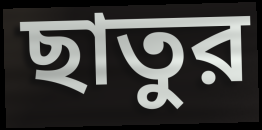
ছাতুর